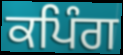
ਕਪਿੰਗ